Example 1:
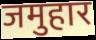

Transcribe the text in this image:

जमुहार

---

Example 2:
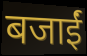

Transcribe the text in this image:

बजाईं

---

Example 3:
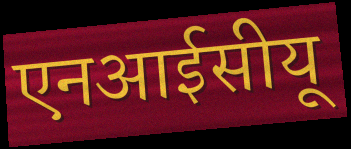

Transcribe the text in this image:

एनआईसीयू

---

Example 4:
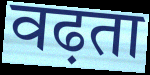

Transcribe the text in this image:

वढ़ता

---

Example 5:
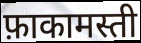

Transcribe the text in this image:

फ़ाकामस्ती